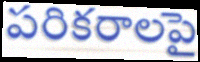
పరికరాలపై